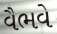
વૈભવે